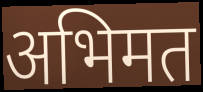
अभिमत